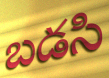
బడసి